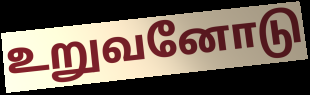
உறுவனோடு